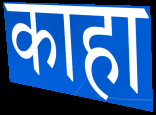
काहा